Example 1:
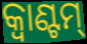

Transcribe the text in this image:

କ୍ଵାଣ୍ଟମ୍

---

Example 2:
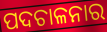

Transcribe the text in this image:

ପଦଚାଳନାର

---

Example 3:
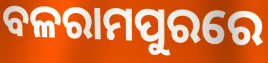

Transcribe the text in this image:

ବଳରାମପୁରରେ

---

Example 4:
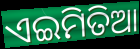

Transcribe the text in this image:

ଏଇମିତିଆ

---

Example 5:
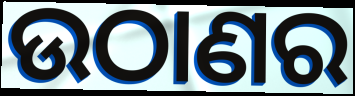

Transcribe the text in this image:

ଉଠାଣର